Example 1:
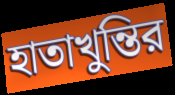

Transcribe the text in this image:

হাতাখুন্তির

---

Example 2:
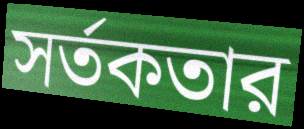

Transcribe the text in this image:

সর্তকতার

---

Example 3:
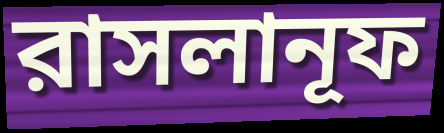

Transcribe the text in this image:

রাসলানূফ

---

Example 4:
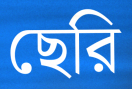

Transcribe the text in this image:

ছেরি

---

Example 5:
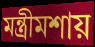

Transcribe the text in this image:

মন্ত্রীমশায়